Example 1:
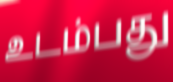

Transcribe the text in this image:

உடம்பது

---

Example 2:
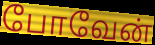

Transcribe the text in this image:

போவேன்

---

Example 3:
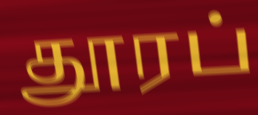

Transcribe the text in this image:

தூரப்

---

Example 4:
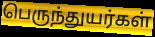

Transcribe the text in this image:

பெருந்துயர்கள்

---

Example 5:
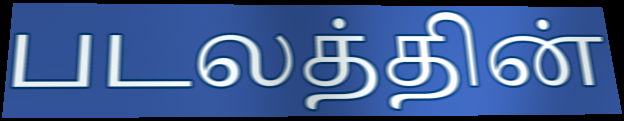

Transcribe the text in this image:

படலத்தின்